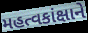
મહત્વકાંક્ષાને